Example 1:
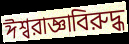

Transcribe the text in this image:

ঈশ্বরাজ্ঞাবিরুদ্ধ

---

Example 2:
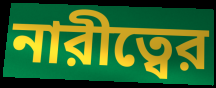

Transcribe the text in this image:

নারীত্বের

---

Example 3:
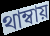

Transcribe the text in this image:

থাম্বায়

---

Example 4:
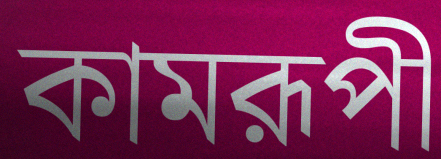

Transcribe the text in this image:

কামরূপী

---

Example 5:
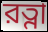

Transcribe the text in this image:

রত্না